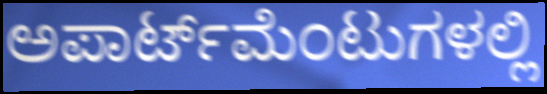
ಅಪಾರ್ಟ್‌ಮೆಂಟುಗಳಲ್ಲಿ